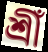
শ্ৰীঁ